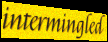
intermingled